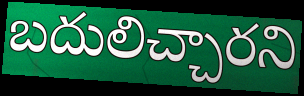
బదులిచ్చారని